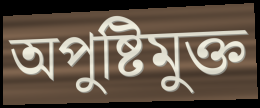
অপুষ্টিমুক্ত